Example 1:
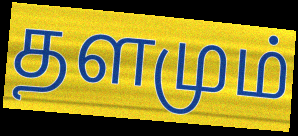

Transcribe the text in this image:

தளமும்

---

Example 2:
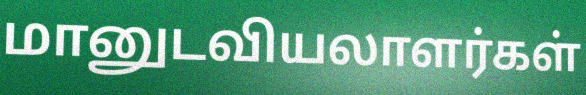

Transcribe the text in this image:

மானுடவியலாளர்கள்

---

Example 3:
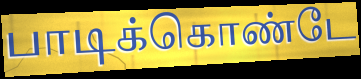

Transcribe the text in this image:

பாடிக்கொண்டே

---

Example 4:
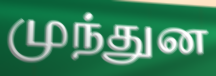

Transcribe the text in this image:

முந்துன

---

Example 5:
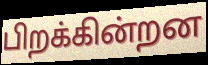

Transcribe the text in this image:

பிறக்கின்றன